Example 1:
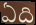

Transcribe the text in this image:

ఏది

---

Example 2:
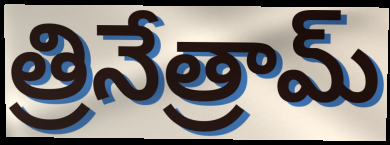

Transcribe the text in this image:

త్రినేత్రామ్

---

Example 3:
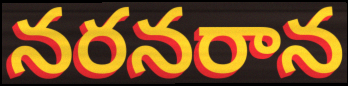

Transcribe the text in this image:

నరనరాన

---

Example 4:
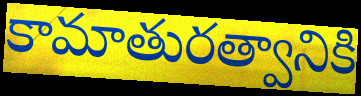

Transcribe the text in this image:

కామాతురత్వానికి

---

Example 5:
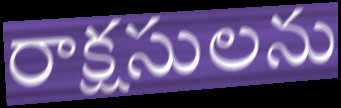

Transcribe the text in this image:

రాక్షసులను